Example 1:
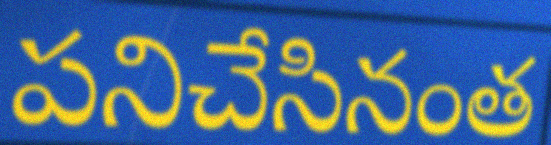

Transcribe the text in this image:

పనిచేసినంత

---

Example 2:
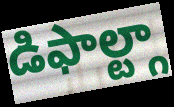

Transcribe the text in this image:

డిఫాల్ట్గా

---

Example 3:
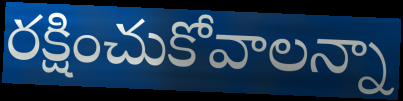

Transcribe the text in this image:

రక్షించుకోవాలన్నా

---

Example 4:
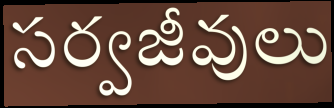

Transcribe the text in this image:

సర్వజీవులు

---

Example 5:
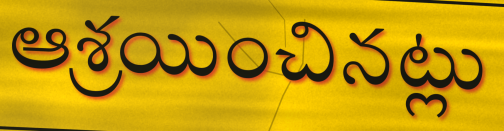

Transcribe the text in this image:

ఆశ్రయించినట్లు